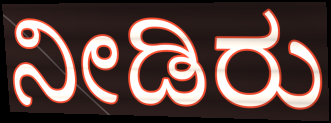
ನೀಡಿರು